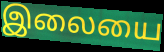
இலையை